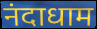
नंदाधाम